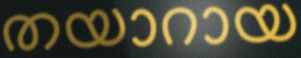
തയാറായ